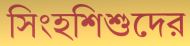
সিংহশিশুদের